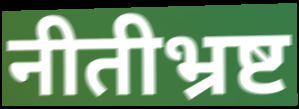
नीतीभ्रष्ट